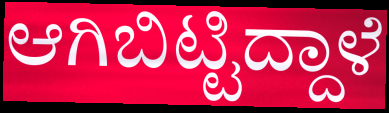
ಆಗಿಬಿಟ್ಟಿದ್ದಾಳೆ